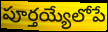
పూర్తయ్యేలోపే